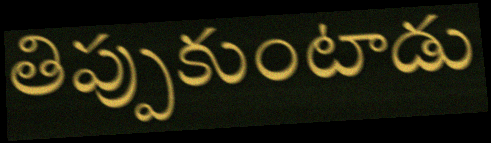
తిప్పుకుంటాడు